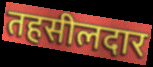
तहसीलदार